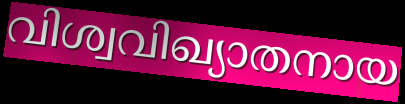
വിശ്വവിഖ്യാതനായ